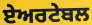
ਏਅਰਟੇਬਲ